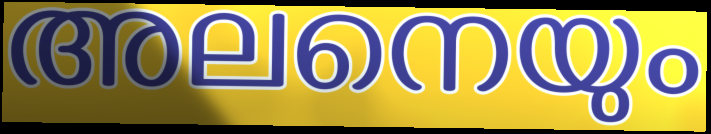
അലനെയും